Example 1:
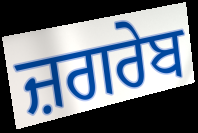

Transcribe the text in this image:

ਜ਼ਗਰੇਬ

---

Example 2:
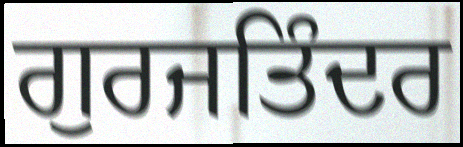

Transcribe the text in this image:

ਗੁਰਜਤਿੰਦਰ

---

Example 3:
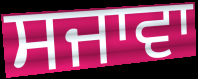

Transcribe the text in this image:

ਸਜਾਵਾ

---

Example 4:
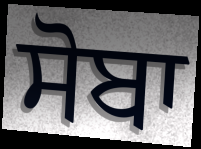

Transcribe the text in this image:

ਸੋਬਾ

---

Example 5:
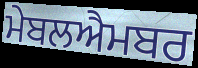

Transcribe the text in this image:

ਮੇਬਲਐਮਬਰ